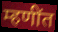
म्हणींत